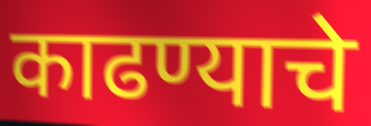
काढण्याचे